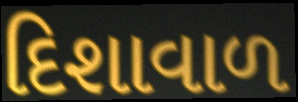
દિશાવાળ